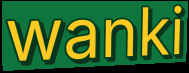
wanki